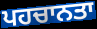
ਪਹਚਾਨਤਾ